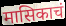
मासिकाचं